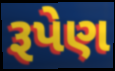
રૂપેણ